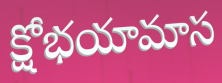
క్షోభయామాస